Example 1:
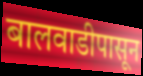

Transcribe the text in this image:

बालवाडीपासून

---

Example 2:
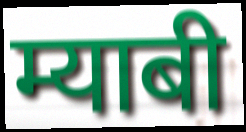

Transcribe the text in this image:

म्याबी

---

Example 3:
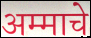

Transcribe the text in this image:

अम्माचे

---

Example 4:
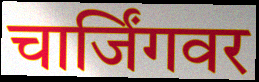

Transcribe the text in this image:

चार्जिंगवर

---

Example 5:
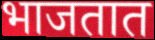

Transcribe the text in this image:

भाजतात